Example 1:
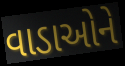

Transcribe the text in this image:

વાડાઓને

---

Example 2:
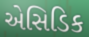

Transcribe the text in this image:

એસિડિક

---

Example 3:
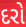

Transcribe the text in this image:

દરો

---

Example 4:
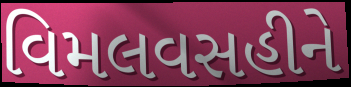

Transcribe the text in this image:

વિમલવસહીને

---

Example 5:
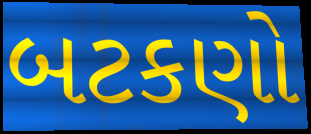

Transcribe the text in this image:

બટકણો